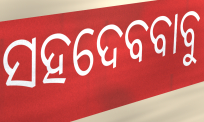
ସହଦେବବାବୁ